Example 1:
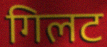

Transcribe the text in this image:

गिलट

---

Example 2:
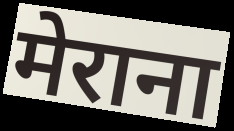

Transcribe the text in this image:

मेराना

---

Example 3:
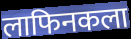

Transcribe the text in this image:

लाफिनकला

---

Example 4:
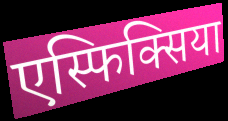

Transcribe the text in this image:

एस्फिक्सिया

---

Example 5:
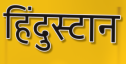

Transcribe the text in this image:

हिंदुस्टान